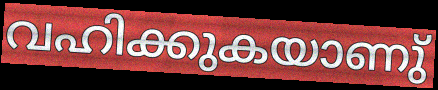
വഹിക്കുകയാണു്